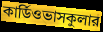
কার্ডিওভাসকুলার